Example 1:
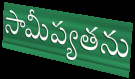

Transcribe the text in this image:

సామీప్యతను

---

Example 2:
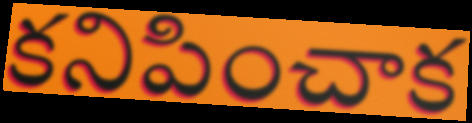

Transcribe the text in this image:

కనిపించాక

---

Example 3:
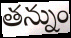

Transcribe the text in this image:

తన్నుం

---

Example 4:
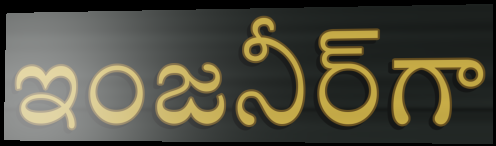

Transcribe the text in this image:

ఇంజనీర్‌గా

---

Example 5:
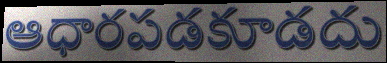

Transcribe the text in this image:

ఆధారపడకూడదు